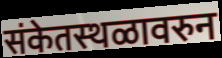
संकेतस्थळावरुन